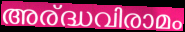
അര്ദ്ധവിരാമം